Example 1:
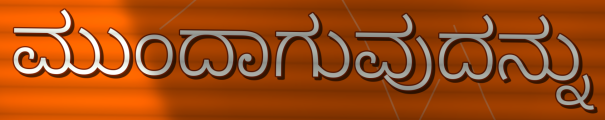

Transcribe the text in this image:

ಮುಂದಾಗುವುದನ್ನು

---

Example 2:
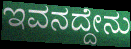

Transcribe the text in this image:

ಇವನದ್ದೇನು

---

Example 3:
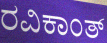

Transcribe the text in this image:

ರವಿಕಾಂತ್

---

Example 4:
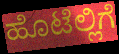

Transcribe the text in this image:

ಹೊಟೆಲ್ಲಿಗೆ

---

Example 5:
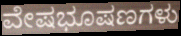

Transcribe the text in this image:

ವೇಷಭೂಷಣಗಳು